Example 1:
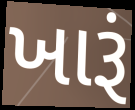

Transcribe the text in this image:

ખારૂં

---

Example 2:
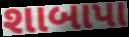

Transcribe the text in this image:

શાબાપા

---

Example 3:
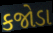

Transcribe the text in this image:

કજોડા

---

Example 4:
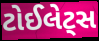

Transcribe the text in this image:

ટોઈલેટ્સ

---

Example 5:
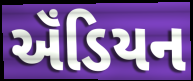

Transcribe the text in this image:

ઍંડિયન